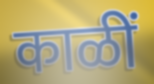
काळीं